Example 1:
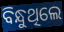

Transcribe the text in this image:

ବିନ୍ଧୁଥିଲେ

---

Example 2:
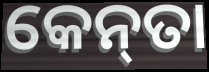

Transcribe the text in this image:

କେନ୍‌ତା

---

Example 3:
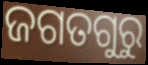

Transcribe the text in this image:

ଜଗତଗୁରୁ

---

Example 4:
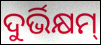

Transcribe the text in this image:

ଦୁର୍ଭିକ୍ଷମ୍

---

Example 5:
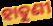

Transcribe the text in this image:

ହାତୁଣୀ